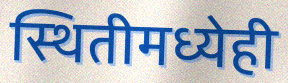
स्थितीमध्येही